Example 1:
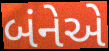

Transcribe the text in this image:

બંનેએ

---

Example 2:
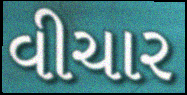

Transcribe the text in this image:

વીચાર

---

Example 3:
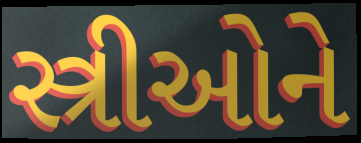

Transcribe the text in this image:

સ્ત્રીઓને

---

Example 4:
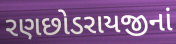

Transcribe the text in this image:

રણછોડરાયજીનાં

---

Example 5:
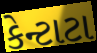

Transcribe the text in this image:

કેન્ટાટા